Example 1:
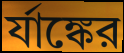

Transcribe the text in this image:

র্যাঙ্কের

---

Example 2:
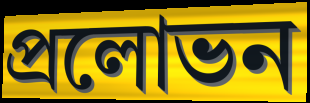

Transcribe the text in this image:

প্রলোভন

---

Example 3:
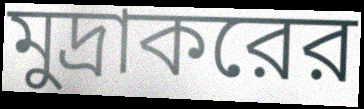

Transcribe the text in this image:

মুদ্রাকরের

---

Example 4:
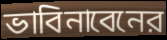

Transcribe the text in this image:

ভাবিনাবেনের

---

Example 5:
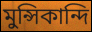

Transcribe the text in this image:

মুন্সিকান্দি